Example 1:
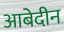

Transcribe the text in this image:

आबेदीन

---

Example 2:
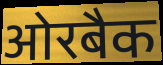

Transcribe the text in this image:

ओरबैक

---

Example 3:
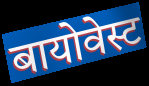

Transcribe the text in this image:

बायोवेस्ट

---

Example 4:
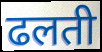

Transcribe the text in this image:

ढलती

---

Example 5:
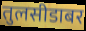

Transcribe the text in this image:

तुलसीडाबर